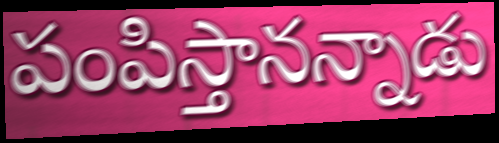
పంపిస్తానన్నాడు